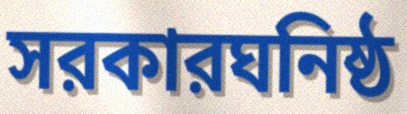
সরকারঘনিষ্ঠ